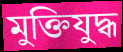
মুক্তিযুদ্ধ